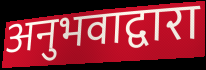
अनुभवाद्वारा